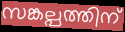
സങ്കല്പത്തിന്